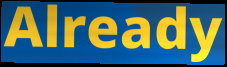
Already